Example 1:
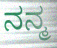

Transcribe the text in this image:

ನನ್ಮ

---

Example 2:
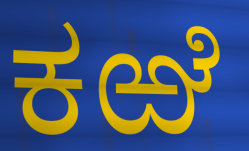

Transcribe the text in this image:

ಕಱೆ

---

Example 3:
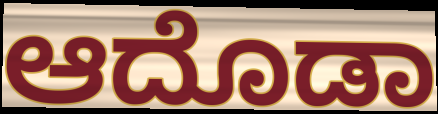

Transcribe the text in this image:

ಆದೊಡಾ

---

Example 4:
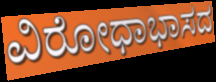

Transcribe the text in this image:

ವಿರೋಧಾಭಾಸದ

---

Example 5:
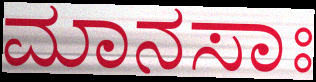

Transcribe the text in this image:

ಮಾನಸಾಃ